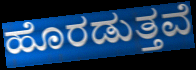
ಹೊರಡುತ್ತವೆ